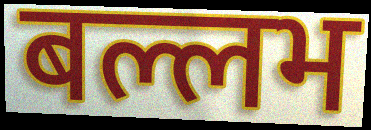
बल्लभ